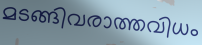
മടങ്ങിവരാത്തവിധം